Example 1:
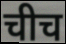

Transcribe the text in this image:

चीच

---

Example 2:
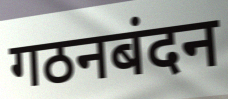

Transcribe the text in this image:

गठनबंदन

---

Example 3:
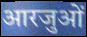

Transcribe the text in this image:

आरजुओं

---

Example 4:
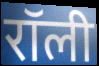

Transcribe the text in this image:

रॉली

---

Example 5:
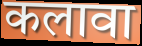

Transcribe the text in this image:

कलावा